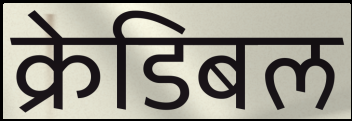
क्रेडिबल